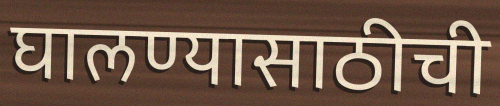
घालण्यासाठीची